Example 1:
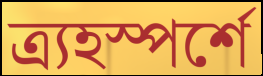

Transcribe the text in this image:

ত্র্যহস্পর্শে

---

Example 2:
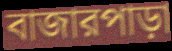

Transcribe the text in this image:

বাজারপাড়া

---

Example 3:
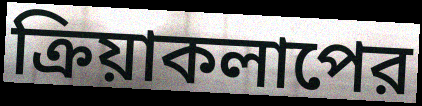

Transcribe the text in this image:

ক্রিয়াকলাপের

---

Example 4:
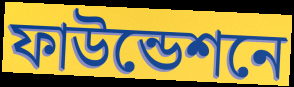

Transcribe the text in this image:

ফাউন্ডেশনে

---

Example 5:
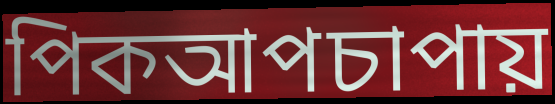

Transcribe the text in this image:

পিকআপচাপায়